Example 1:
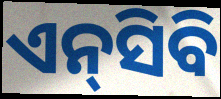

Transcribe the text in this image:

ଏନ୍‌ସିବି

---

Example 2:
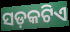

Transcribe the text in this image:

ସଡ଼କଟିଏ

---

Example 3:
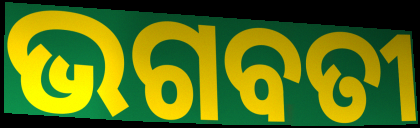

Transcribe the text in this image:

ଭଗବତୀ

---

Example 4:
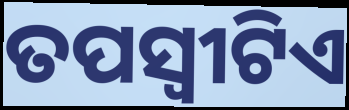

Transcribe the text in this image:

ତପସ୍ୱୀଟିଏ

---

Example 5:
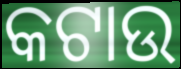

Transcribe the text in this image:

କଟାଉ